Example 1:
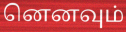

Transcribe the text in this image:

னெனவும்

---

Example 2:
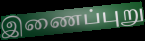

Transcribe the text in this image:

இணைப்புறு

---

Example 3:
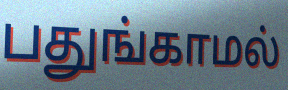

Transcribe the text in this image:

பதுங்காமல்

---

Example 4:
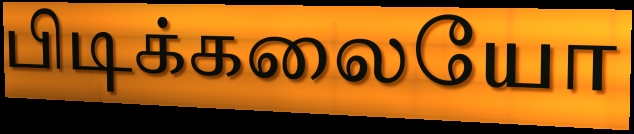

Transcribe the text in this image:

பிடிக்கலையோ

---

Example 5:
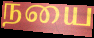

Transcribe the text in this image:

நயை